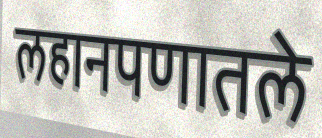
लहानपणातले